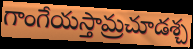
గాంగేయస్తామ్రచూడశ్చ